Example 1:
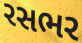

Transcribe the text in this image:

રસભર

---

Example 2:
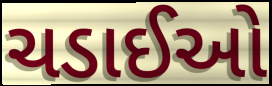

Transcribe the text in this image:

ચડાઈઓ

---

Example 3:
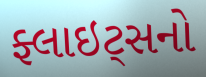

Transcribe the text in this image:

ફ્લાઇટ્સનો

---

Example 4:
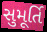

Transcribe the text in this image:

સુમૂર્તિ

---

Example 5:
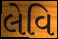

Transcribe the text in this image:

લેવિ